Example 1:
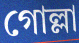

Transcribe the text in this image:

গোল্লা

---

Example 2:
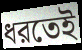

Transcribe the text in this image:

ধরতেই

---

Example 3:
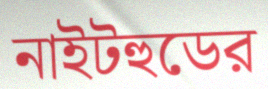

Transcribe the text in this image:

নাইটহুডের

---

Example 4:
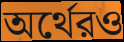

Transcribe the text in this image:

অর্থেরও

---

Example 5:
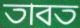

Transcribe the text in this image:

তাবত